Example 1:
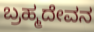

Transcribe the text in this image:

ಬ್ರಹ್ಮದೇವನ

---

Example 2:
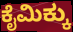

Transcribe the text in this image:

ಕೈಮಿಕ್ಕು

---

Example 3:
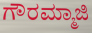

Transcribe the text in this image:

ಗೌರಮ್ಮಾಜಿ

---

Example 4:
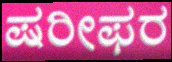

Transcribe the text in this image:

ಷರೀಫರ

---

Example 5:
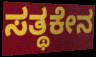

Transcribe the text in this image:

ಸತ್ಥಕೇನ